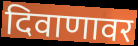
दिवाणावर